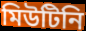
মিউটিনি